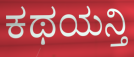
ಕಥಯನ್ತಿ